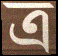
ত্র